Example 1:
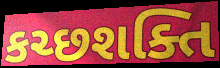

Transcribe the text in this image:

કચ્છશક્તિ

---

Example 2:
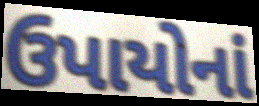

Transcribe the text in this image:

ઉપાયોનાં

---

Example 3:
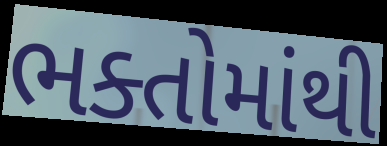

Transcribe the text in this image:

ભક્તોમાંથી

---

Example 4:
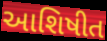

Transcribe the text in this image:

આશિષીત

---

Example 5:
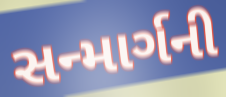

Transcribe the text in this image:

સન્માર્ગની